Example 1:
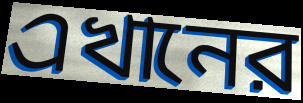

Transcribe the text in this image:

এখানের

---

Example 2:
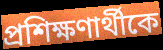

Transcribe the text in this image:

প্রশিক্ষণার্থীকে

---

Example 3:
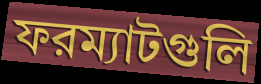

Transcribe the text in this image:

ফরম্যাটগুলি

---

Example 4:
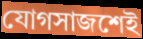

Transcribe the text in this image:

যোগসাজশেই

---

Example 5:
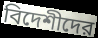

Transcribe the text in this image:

বিদেশীদের